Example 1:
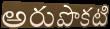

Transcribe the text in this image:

అరుపొకటి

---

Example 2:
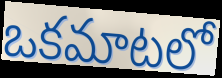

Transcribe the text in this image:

ఒకమాటలో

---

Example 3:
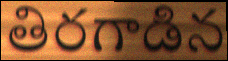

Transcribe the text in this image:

తిరగాడిన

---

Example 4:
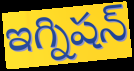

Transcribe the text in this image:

ఇగ్నిషన్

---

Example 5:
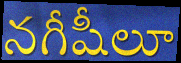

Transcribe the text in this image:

నగీషీలూ